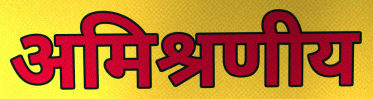
अमिश्रणीय